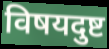
विषयदुष्ट